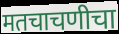
मतचाचणीचा